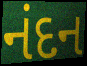
નંદન